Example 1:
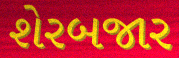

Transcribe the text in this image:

શેરબજાર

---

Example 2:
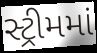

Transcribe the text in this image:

સ્ટ્રીમમાં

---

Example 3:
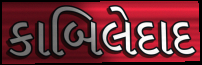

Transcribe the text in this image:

કાબિલેદાદ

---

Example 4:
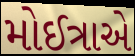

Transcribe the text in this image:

મોઈત્રાએ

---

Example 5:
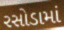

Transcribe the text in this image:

રસોડામાં